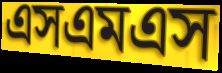
এসএমএস